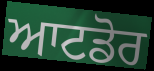
ਆਟਡੋਰ